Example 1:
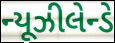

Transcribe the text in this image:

ન્યૂઝીલેન્ડે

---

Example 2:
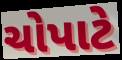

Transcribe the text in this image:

ચોપાટે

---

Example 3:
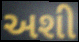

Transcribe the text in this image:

અશી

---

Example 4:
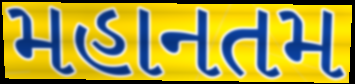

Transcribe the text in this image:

મહાનતમ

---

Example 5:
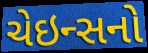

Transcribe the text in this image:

ચેઇન્સનો